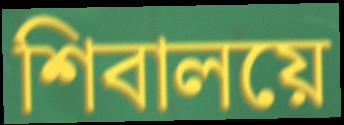
শিবালয়ে